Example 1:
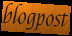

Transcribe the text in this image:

blogpost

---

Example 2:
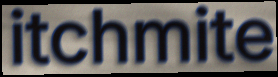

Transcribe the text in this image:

itchmite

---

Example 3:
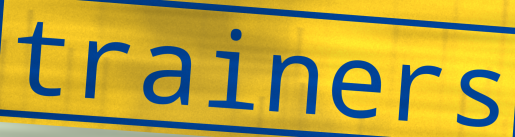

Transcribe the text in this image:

trainers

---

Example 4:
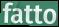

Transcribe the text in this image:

fatto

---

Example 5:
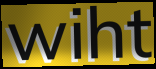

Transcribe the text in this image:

wiht